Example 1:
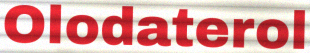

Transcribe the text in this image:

Olodaterol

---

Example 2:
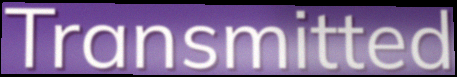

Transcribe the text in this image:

Transmitted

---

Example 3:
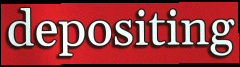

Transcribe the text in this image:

depositing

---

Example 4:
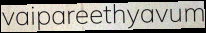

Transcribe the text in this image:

vaipareethyavum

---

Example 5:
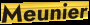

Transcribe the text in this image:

Meunier